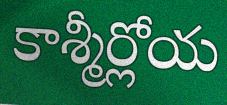
కాశ్మీర్లోయ